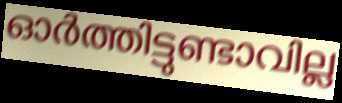
ഓർത്തിട്ടുണ്ടാവില്ല